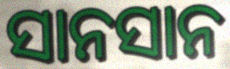
ସାନସାନ